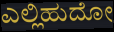
ಎಲ್ಲಿಹುದೋ